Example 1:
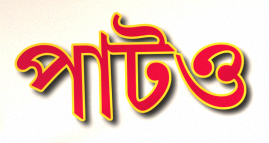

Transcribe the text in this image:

পাটও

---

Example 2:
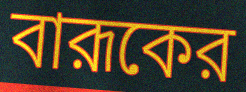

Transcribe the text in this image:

বারূকের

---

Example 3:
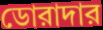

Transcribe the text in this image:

ডোরাদার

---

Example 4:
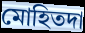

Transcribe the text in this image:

মোহিতদা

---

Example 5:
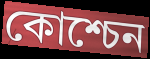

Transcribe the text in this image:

কোশ্চেন